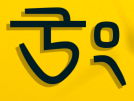
উং